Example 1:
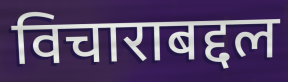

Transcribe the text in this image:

विचाराबद्दल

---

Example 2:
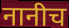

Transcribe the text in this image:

नानीच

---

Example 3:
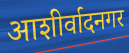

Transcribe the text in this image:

आशीर्वादनगर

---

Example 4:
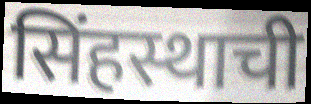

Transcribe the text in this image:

सिंहस्थाची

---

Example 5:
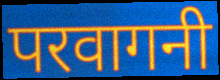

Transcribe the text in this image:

परवागनी